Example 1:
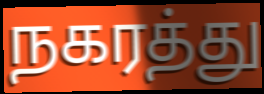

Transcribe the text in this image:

நகரத்து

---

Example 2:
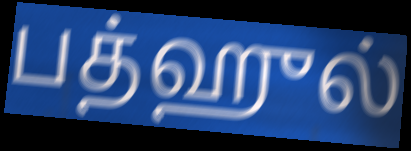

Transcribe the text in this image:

பத்ஹுல்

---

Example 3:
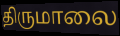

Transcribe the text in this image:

திருமாலை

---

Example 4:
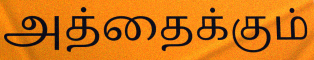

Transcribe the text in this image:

அத்தைக்கும்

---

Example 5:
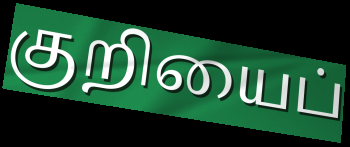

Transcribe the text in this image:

குறியைப்